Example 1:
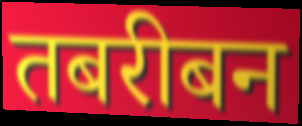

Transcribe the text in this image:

तबरीबन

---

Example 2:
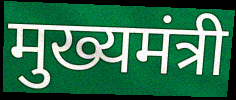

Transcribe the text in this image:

मुख्‍यमंत्री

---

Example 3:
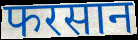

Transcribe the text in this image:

फरसान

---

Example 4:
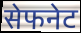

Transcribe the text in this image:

सेफनेट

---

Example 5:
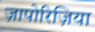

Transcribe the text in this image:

ज़ापोरिज़िया